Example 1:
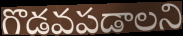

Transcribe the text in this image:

గొడవపడాలని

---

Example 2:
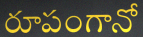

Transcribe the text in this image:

రూపంగానో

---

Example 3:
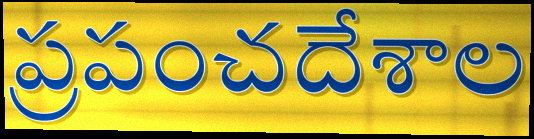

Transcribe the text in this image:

ప్రపంచదేశాల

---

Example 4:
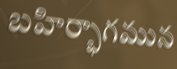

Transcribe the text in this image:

బహిర్భాగమున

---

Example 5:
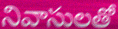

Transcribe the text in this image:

నివాసులతో